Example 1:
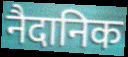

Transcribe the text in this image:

नैदानिक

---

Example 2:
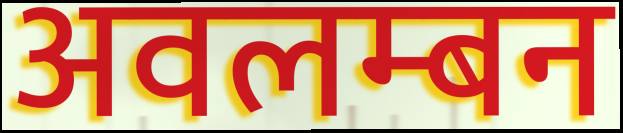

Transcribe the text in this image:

अवलम्बन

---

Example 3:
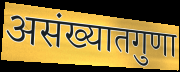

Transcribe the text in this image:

असंख्यातगुणा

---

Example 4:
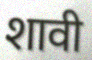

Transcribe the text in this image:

शावी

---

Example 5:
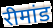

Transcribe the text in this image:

रीमांड